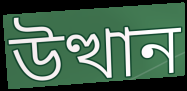
উত্থান